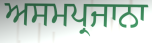
ਅਸਮਪ੍ਰਜਾਨਾ